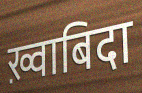
ख़्वाबिदा